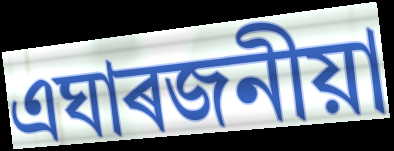
এঘাৰজনীয়া